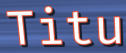
Titu